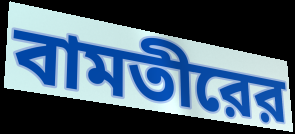
বামতীরের